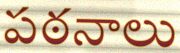
పఠనాలు